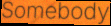
Somebody